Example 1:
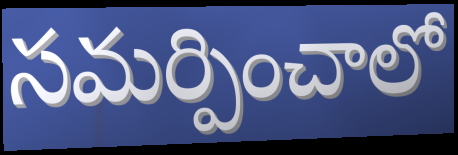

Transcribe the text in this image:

సమర్పించాలో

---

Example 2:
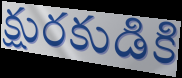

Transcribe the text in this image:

క్షురకుడికి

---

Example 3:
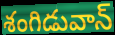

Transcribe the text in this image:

శంగిడువాన్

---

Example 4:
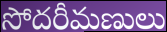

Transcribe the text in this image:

సోదరీమణులు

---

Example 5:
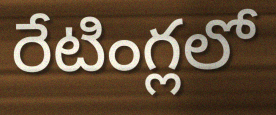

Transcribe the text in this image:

రేటింగ్లలో